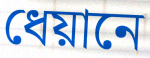
ধেয়ানে